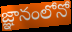
జ్ఞానంలోనో